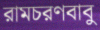
রামচরণবাবু